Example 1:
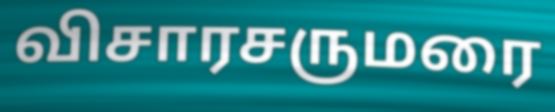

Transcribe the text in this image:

விசாரசருமரை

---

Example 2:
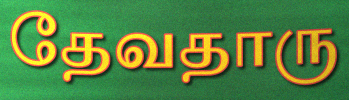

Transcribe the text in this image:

தேவதாரு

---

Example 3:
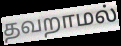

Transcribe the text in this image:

தவறாமல்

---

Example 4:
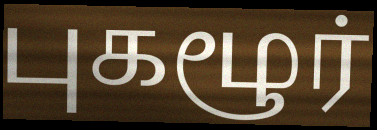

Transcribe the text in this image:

புகழூர்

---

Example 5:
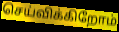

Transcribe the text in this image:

செய்விக்கிறோம்